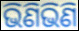
ଭିଣିଭିଣି